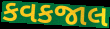
કવકજાલ